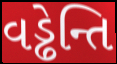
વડ્ઢેન્તિ